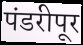
पंडरीपूर